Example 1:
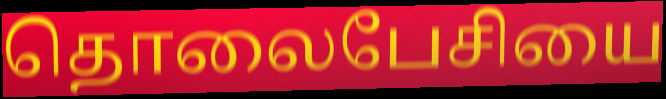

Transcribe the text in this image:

தொலைபேசியை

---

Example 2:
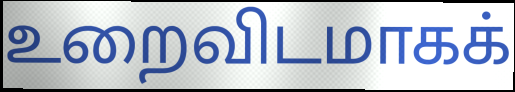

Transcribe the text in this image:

உறைவிடமாகக்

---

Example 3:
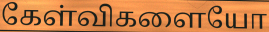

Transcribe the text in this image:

கேள்விகளையோ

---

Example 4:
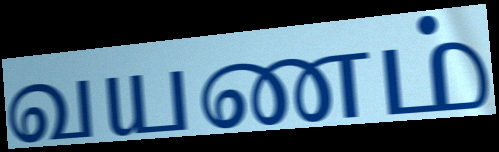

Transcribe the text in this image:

வயணம்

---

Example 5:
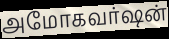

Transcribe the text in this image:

அமோகவர்ஷன்